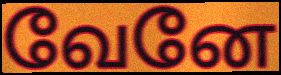
வேனே